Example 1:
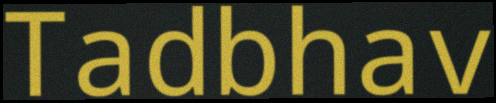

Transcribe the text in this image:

Tadbhav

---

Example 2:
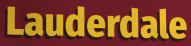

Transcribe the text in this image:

Lauderdale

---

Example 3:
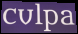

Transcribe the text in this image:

culpa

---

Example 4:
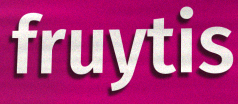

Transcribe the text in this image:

fruytis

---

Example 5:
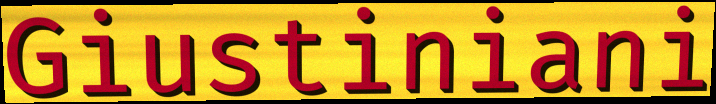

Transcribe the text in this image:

Giustiniani